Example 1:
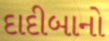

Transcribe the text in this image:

દાદીબાનો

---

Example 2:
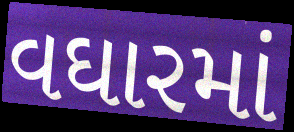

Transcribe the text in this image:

વઘારમાં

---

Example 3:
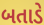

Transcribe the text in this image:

બતાડે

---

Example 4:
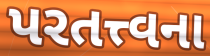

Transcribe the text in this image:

પરતત્ત્વના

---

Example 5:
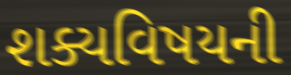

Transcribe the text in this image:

શક્યવિષયની